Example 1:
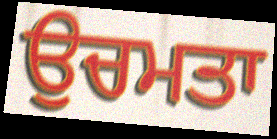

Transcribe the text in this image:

ਉਚਮਤਾ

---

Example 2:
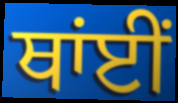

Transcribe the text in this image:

ਥਾਂਈਂ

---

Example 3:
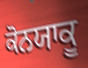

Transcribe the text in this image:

ਕੋਨਯਾਕੂ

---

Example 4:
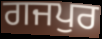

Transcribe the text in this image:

ਗਜਪੁਰ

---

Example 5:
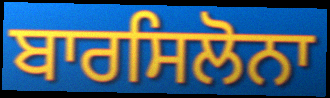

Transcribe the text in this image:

ਬਾਰਸਿਲੋਨਾ